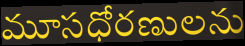
మూసధోరణులను